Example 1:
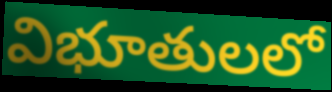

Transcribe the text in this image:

విభూతులలో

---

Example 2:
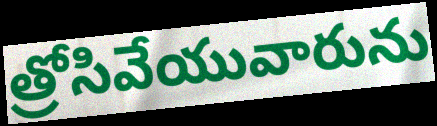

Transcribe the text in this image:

త్రోసివేయువారును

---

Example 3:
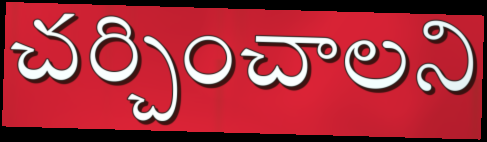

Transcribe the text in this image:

చర్చించాలని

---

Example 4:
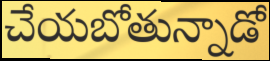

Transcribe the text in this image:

చేయబోతున్నాడో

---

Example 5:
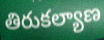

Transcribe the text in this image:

తిరుకల్యాణ